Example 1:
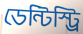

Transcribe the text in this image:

ডেন্টিস্ট্রি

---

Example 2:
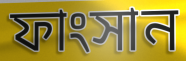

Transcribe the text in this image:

ফাংসান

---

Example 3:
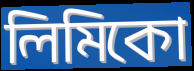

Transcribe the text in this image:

লিমিকো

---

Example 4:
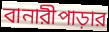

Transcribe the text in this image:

বানারীপাড়ার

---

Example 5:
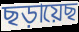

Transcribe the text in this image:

ছড়ায়েছ